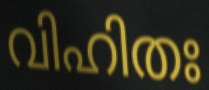
വിഹിതഃ